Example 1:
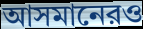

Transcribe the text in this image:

আসমানেরও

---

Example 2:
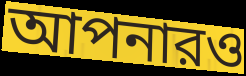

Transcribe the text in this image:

আপনারও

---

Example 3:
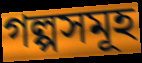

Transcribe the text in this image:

গল্পসমূহ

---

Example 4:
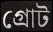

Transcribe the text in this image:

গ্রোট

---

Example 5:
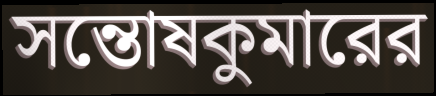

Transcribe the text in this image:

সন্তোষকুমারের